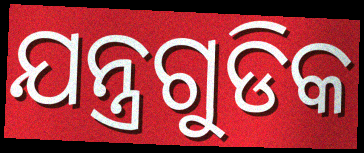
ଯନ୍ତ୍ରଗୁଡିକ